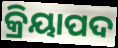
କ୍ରିୟାପଦ